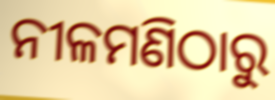
ନୀଳମଣିଠାରୁ